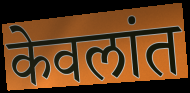
केवलांत